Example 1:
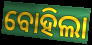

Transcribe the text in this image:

ବୋହିଲା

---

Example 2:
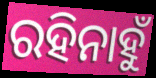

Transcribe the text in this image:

ରହିନାହୁଁ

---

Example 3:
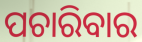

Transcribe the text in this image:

ପଚାରିବାର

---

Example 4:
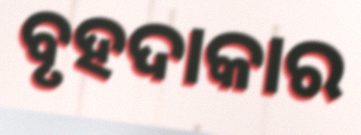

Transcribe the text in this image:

ବୃହଦାକାର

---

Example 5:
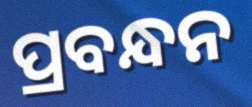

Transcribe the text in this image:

ପ୍ରବନ୍ଧନ